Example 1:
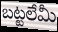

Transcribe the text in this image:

బట్టలేమీ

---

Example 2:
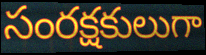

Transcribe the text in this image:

సంరక్షకులుగా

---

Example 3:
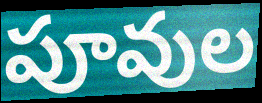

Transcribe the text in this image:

పూవుల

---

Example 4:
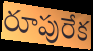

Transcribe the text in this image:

రూపురేక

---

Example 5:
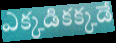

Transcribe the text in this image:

ఎక్కడికక్కడే